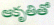
ఆకృతితో